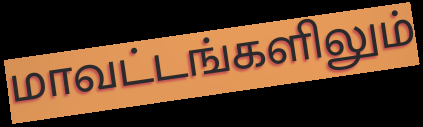
மாவட்டங்களிலும்